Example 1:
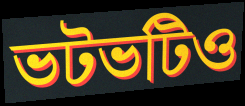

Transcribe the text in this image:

ভটভটিও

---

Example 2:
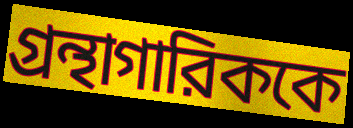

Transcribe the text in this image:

গ্রন্থাগারিককে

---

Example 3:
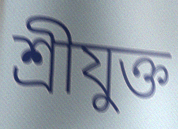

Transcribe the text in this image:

শ্রীযুক্ত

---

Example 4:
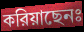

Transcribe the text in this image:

করিয়াছেনঃ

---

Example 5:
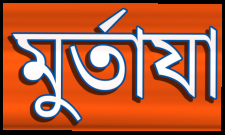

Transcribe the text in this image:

মুর্তাযা